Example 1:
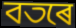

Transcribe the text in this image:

বতৰে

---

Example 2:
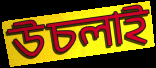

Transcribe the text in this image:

উচলাই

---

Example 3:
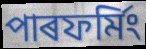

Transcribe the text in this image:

পাৰফৰ্মিং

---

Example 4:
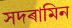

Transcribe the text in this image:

সদৰামিন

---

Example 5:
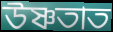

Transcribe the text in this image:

উষ্ণতাত